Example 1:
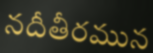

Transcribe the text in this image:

నదీతీరమున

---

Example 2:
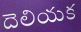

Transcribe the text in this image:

దెలియక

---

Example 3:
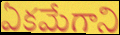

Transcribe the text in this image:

ఏకమేగాని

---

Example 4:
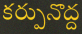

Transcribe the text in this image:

కర్పునొద్ద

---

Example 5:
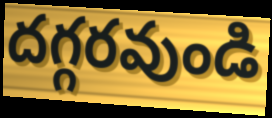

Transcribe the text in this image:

దగ్గరవుండి